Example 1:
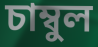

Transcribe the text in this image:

চাম্বুল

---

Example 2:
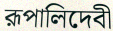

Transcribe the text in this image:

রূপালিদেবী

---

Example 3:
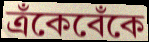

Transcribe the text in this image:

ত্রঁকেবেঁকে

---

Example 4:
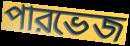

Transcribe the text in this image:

পারভেজ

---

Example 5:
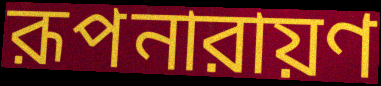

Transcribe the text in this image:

রূপনারায়ণ